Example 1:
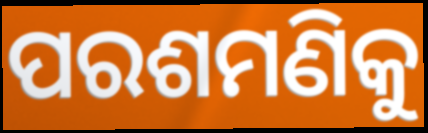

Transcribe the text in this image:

ପରଶମଣିକୁ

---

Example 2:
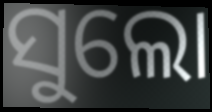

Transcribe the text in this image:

ସୁଲୋ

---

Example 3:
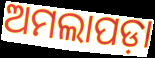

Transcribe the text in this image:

ଅମଲାପଡ଼ା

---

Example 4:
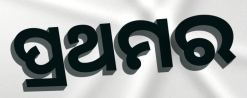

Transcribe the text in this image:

ପ୍ରଥମର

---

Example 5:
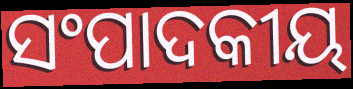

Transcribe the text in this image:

ସଂପାଦକୀୟ